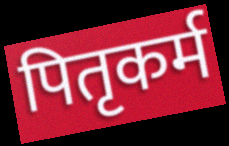
पितृकर्म